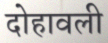
दोहावली